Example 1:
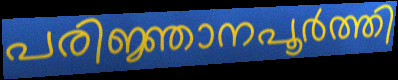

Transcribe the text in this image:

പരിജ്ഞാനപൂർത്തി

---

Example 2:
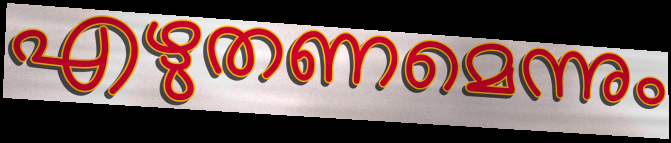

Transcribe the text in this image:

എഴുതണമെന്നും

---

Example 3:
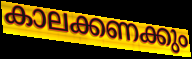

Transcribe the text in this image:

കാലക്കണക്കും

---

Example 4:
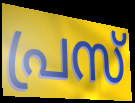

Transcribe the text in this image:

പ്രസ്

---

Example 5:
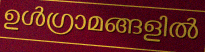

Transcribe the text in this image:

ഉൾഗ്രാമങ്ങളിൽ